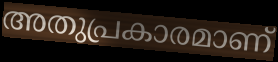
അതുപ്രകാരമാണ്